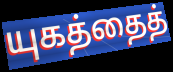
யுகத்தைத்